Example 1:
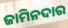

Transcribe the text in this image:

ଜାମିନଦାର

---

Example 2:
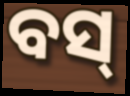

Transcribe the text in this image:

ବସ୍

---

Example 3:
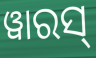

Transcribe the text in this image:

ୱାରସ୍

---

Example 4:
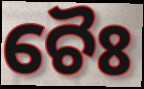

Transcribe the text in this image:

ଚୈଃ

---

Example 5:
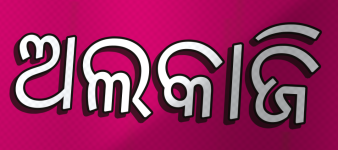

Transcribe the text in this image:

ଅଲକାଜି